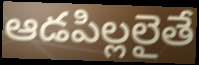
ఆడపిల్లలైతే